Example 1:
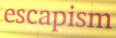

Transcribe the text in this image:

escapism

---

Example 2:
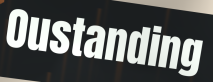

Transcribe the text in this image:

Oustanding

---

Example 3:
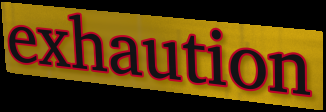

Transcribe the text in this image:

exhaution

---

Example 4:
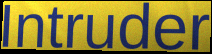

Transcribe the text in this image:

Intruder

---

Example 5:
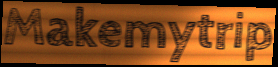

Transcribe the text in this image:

Makemytrip